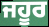
ਜਹੂਰ